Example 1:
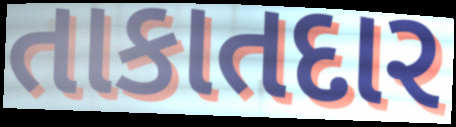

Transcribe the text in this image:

તાકાતદાર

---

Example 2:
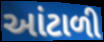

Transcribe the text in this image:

આંટાળી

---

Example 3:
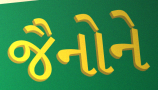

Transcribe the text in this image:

જૈનોને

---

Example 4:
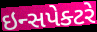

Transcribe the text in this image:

ઇન્સપેક્ટરે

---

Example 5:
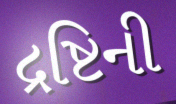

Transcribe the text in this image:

દ્રષ્ટિની